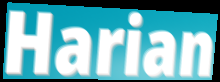
Harian